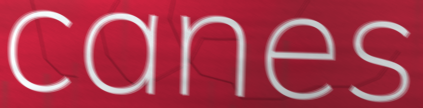
canes